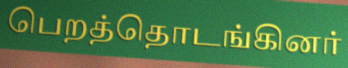
பெறத்தொடங்கினர்